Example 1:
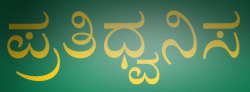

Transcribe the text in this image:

ಪ್ರತಿಧ್ವನಿಸ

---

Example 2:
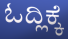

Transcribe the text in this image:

ಓದ್ಲಿಕ್ಕೆ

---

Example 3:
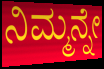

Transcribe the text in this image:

ನಿಮ್ಮನ್ನೇ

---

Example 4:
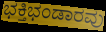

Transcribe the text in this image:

ಭಕ್ತಿಭಂಡಾರವು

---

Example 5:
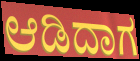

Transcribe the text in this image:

ಆಡಿದಾಗ